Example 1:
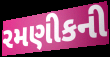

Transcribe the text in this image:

રમણીકની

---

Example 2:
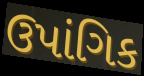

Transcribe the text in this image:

ઉપાંગિક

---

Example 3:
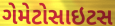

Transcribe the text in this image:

ગેમેટોસાઇટસ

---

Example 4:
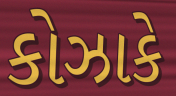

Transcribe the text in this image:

કોઝાકે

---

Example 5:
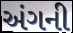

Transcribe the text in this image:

અંગની